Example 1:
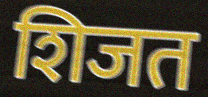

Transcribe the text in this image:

शिजत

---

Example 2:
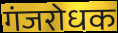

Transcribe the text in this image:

गंजरोधक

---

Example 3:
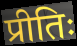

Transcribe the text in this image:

प्रीतिः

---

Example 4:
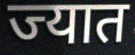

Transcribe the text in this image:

ज्यात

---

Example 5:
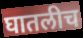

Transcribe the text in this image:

घातलीच